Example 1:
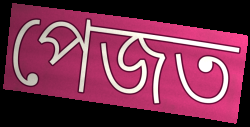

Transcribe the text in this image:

পেজত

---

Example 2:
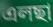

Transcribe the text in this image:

এলছা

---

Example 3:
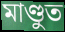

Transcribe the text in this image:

মাণ্ডুত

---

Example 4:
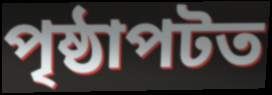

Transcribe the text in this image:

পৃষ্ঠাপটত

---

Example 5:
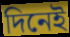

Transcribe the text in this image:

দিনেই